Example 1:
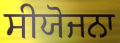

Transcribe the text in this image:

ਸੀਯੋਜਨਾ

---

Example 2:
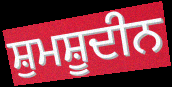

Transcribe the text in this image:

ਸ਼ੁਮਸ਼ੂਦੀਨ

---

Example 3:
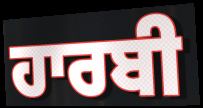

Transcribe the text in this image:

ਹਾਰਬੀ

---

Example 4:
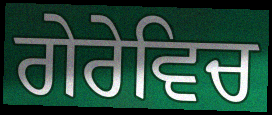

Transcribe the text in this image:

ਗੇਰੇਵਿਚ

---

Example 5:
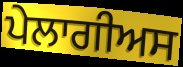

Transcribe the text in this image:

ਪੇਲਾਗੀਅਸ